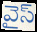
వైస్